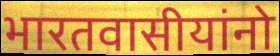
भारतवासीयांनो